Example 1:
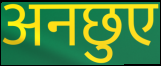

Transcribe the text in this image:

अनछुए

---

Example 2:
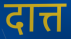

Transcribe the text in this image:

दात्त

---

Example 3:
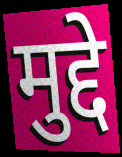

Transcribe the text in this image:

मुद्दे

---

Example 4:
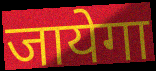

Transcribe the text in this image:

जायेगा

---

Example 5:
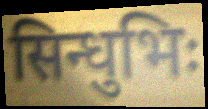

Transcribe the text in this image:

सिन्धुभिः